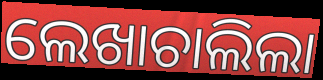
ଲେଖାଚାଲିଲା